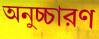
অনুচ্চারণ